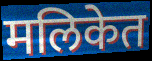
मलिकेत